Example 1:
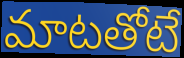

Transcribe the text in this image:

మాటతోటే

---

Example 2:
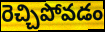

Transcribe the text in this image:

రెచ్చిపోవడం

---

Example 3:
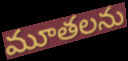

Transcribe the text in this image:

మూతలను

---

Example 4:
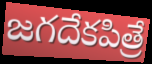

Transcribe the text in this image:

జగదేకపిత్రే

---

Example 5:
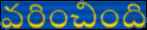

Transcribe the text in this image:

వరించింది